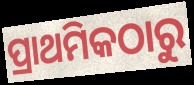
ପ୍ରାଥମିକଠାରୁ